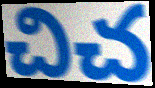
చిచ